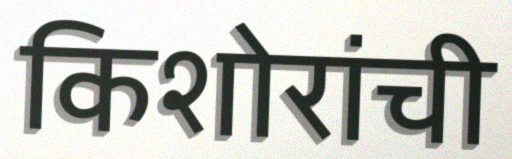
किशोरांची